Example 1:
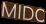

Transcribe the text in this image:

MIDC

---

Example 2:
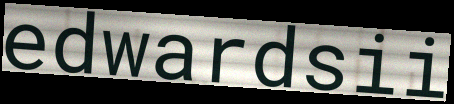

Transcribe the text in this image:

edwardsii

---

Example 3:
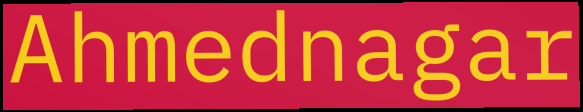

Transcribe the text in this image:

Ahmednagar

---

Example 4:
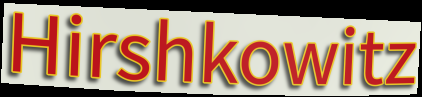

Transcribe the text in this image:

Hirshkowitz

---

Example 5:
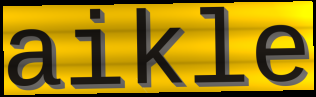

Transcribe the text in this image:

aikle